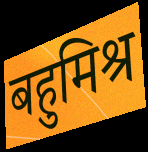
बहुमिश्र